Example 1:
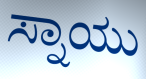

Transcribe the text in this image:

ಸ್ನಾಯು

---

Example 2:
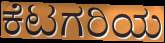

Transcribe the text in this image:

ಕೆಟಗರಿಯ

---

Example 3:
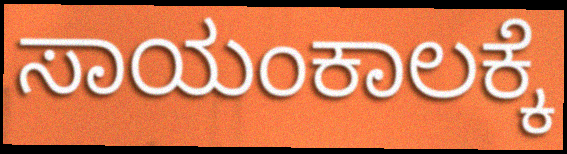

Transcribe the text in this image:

ಸಾಯಂಕಾಲಕ್ಕೆ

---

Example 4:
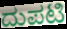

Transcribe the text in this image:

ದುಪಟಿ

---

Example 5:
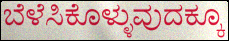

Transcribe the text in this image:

ಬೆಳೆಸಿಕೊಳ್ಳುವುದಕ್ಕೂ